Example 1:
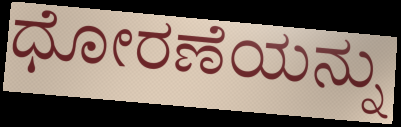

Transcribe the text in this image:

ಧೋರಣೆಯನ್ನು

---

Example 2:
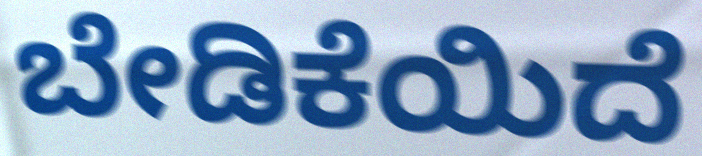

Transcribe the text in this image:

ಬೇಡಿಕೆಯಿದೆ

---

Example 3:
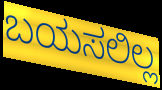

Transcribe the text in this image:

ಬಯಸಲಿಲ್ಲ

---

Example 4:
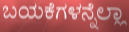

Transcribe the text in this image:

ಬಯಕೆಗಳನ್ನೆಲ್ಲಾ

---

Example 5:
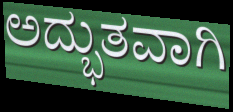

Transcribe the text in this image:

ಅದ್ಭುತವಾಗಿ